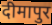
दीमापुर